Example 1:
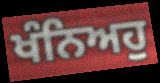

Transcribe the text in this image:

ਖੰਨਿਅਹੁ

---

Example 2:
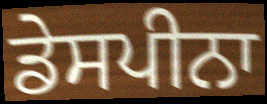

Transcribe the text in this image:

ਡੇਸਪੀਨਾ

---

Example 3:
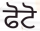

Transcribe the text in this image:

ਫੋਟੋ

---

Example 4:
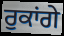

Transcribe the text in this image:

ਰੁਕਾਂਗੇ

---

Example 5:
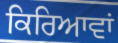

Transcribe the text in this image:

ਕਿਰਿਆਵਾਂ